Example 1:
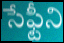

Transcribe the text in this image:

సేఫ్టీని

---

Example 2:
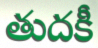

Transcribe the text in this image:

తుదకీ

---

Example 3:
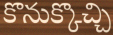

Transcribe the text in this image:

కొనుక్కొచ్చి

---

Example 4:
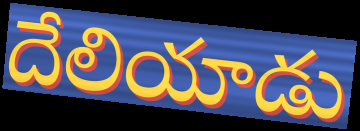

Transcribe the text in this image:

దేలియాడు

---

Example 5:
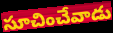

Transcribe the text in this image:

సూచించేవాడు